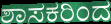
ಶಾಸಕರಿಂದ